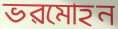
ভৱমোহন